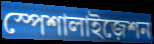
স্পেশালাইজ়েশন